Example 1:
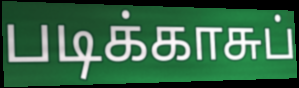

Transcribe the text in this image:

படிக்காசுப்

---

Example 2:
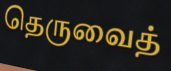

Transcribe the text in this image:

தெருவைத்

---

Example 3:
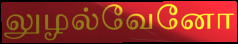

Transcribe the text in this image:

லுழல்வேனோ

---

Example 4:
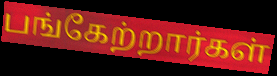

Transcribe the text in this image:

பங்கேற்றார்கள்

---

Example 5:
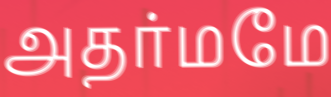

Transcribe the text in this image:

அதர்மமே